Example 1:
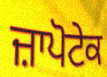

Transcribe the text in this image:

ਜ਼ਾਪੋਟੇਕ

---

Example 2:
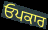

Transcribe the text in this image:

ਓਪਕਾਰ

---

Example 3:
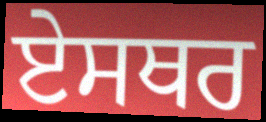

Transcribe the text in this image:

ਏਸਥਰ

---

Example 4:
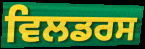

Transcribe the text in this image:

ਵਿਲਡਰਸ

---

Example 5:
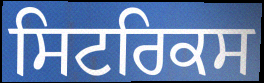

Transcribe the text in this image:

ਸਿਟਰਿਕਸ